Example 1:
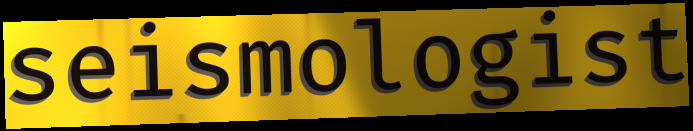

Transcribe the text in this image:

seismologist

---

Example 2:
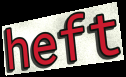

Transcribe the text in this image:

heft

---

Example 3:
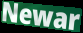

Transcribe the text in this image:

Newar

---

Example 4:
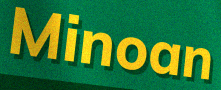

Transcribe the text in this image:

Minoan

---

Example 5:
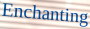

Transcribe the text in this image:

Enchanting